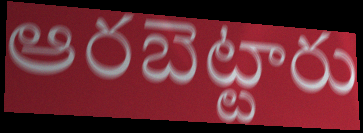
ఆరబెట్టారు